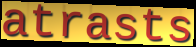
atrasts